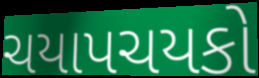
ચયાપચયકો